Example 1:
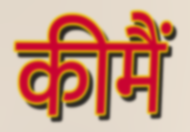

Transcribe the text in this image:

कीमैं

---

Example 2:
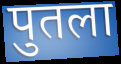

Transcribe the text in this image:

पुतला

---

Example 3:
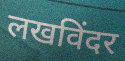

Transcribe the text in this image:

लखविंदर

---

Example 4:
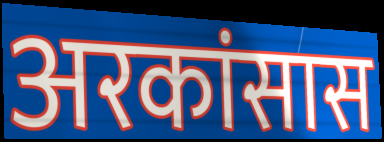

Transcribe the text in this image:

अरकांसास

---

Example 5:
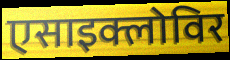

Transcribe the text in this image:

एसाइक्लोविर